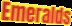
Emeralds